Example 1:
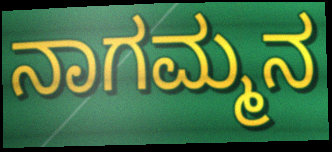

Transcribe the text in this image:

ನಾಗಮ್ಮನ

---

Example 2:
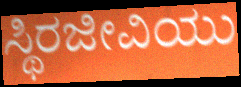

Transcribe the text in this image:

ಸ್ಥಿರಜೀವಿಯು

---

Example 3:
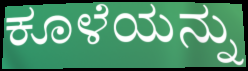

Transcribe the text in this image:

ಕೂಳೆಯನ್ನು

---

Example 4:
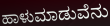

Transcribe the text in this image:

ಹಾಳುಮಾಡುವೆನು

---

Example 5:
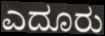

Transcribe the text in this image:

ಎದೂರು